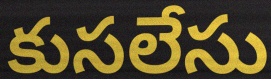
కుసలేసు